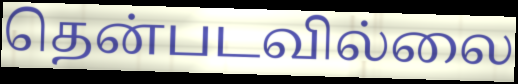
தென்படவில்லை